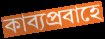
কাব্যপ্রবাহে